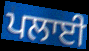
ਪਲਾਈ